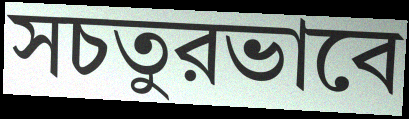
সচতুরভাবে